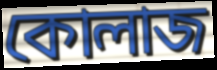
কোলাজ